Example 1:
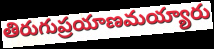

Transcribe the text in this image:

తిరుగుప్రయాణమయ్యారు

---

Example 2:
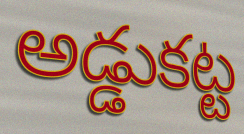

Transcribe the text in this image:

అడ్డుకట్ట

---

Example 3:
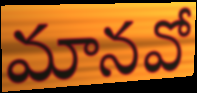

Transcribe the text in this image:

మానవో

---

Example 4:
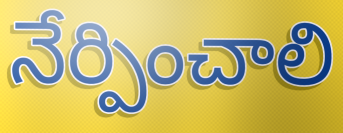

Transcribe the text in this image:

నేర్పించాలి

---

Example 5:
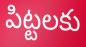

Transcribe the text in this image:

పిట్టలకు